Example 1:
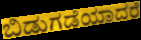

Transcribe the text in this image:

ಬಿಡುಗಡೆಯಾದರೆ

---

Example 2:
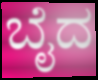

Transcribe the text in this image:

ಬೈದ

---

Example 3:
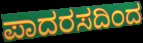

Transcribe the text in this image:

ಪಾದರಸದಿಂದ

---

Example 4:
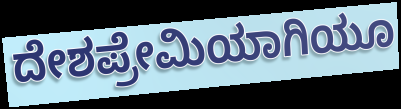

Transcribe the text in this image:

ದೇಶಪ್ರೇಮಿಯಾಗಿಯೂ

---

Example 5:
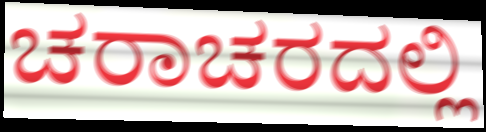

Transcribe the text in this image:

ಚರಾಚರದಲ್ಲಿ